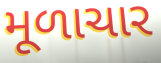
મૂળાચાર